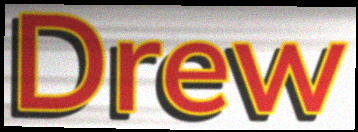
Drew